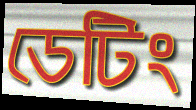
ডেটিং